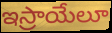
ఇస్రాయేలూ